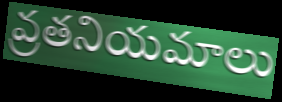
వ్రతనియమాలు